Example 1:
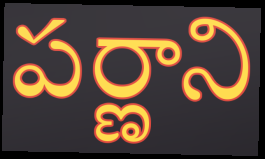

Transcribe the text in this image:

పర్ణాని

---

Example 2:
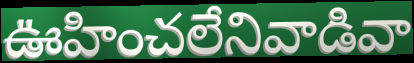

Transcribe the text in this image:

ఊహించలేనివాడివా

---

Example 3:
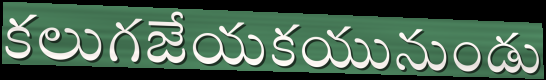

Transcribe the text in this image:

కలుగజేయకయునుండు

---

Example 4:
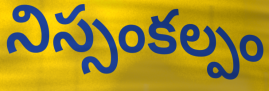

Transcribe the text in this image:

నిస్సంకల్పం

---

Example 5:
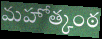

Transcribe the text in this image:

మహోత్కంఠ